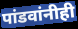
पांडवांनीही